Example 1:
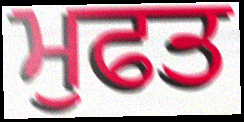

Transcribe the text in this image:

ਮੁਫਤ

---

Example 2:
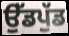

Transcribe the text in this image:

ਉੱਡਪੁੱਡ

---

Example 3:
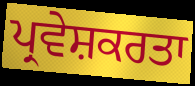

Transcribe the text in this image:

ਪ੍ਰਵੇਸ਼ਕਰਤਾ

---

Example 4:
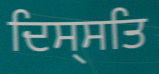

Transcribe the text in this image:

ਦਿਸ੍ਸਤਿ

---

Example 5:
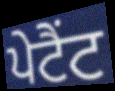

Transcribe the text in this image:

ਪੇਟੈਂਟ